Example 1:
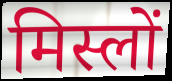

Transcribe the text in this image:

मिस्लों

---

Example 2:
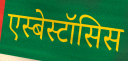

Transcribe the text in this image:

एस्बेस्टॉसिस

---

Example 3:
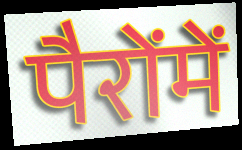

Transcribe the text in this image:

पैरोंमें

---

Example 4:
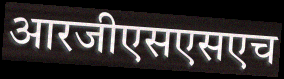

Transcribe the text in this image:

आरजीएसएसएच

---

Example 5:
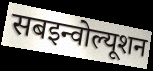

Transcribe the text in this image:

सबइन्वोल्यूशन